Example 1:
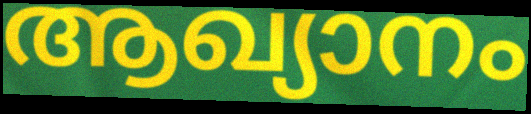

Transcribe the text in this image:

ആഖ്യാനം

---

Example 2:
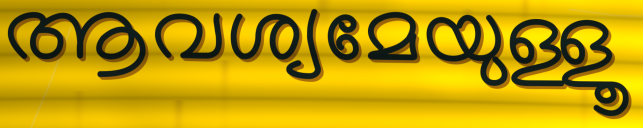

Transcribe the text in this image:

ആവശ്യമേയുള്ളൂ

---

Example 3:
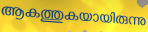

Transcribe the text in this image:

ആകത്തുകയായിരുന്നു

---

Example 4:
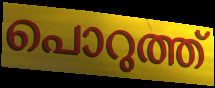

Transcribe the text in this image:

പൊറുത്ത്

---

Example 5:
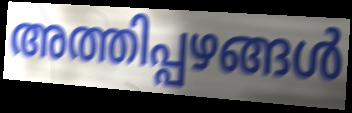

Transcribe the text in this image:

അത്തിപ്പഴങ്ങൾ